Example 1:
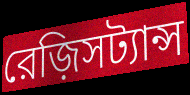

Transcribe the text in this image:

রেজ়িসট্যান্স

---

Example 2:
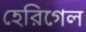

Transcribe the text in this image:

হেরিগেল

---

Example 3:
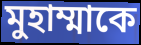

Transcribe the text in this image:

মুহাম্মাকে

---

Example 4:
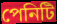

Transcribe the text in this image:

পেনিটি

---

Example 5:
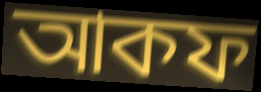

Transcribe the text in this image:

আকফ